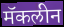
मॅकलीन